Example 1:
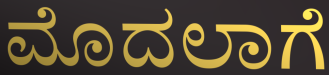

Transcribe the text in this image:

ಮೊದಲಾಗೆ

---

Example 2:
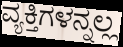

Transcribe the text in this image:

ವ್ಯಕ್ತಿಗಳನ್ನಲ್ಲ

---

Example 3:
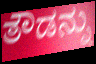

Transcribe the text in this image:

ತೌಡನ್ನು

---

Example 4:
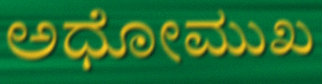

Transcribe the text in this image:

ಅಧೋಮುಖ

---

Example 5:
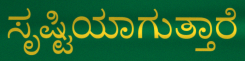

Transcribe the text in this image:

ಸೃಷ್ಟಿಯಾಗುತ್ತಾರೆ